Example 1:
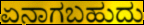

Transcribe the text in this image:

ಏನಾಗಬಹುದು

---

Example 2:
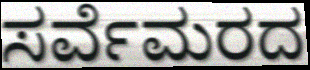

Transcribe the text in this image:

ಸರ್ವೆಮರದ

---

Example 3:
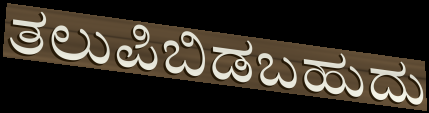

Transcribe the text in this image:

ತಲುಪಿಬಿಡಬಹುದು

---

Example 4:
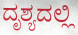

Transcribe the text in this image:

ದೃಶ್ಯದಲ್ಲಿ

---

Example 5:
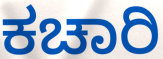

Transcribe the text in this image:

ಕಚಾರಿ